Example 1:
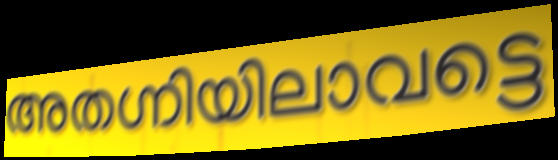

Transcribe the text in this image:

അതഗ്നിയിലാവട്ടെ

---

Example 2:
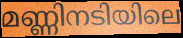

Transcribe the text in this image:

മണ്ണിനടിയിലെ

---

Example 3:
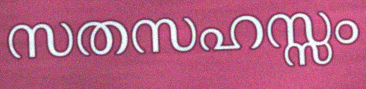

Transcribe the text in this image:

സതസഹസ്സം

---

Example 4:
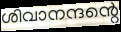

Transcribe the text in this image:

ശിവാനന്ദന്റെ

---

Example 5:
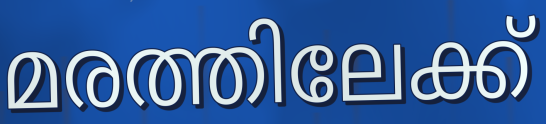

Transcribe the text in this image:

മരത്തിലേക്ക്